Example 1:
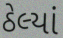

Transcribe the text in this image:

ઠેલ્યાં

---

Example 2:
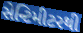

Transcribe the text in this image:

સેન્ટિમીટરથી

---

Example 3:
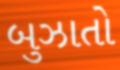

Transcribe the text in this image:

બુઝાતો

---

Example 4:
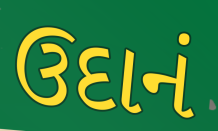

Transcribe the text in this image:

ઉદાનં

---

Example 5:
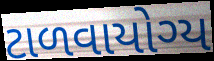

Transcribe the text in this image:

ટાળવાયોગ્ય